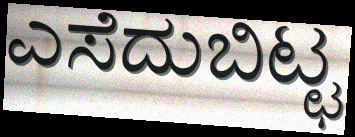
ಎಸೆದುಬಿಟ್ಟ